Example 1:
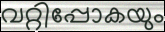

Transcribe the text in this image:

വറ്റിപ്പോകയും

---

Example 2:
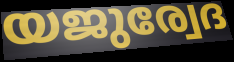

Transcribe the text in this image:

യജുര്വേദ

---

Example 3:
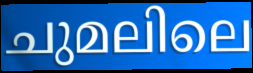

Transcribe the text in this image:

ചുമലിലെ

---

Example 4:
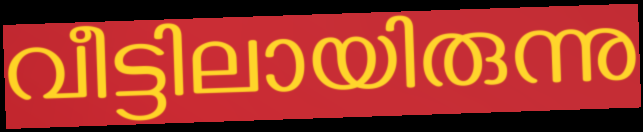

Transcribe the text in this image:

വീട്ടിലായിരുന്നു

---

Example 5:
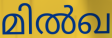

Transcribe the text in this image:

മിൽഖ